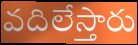
వదిలేస్తారు